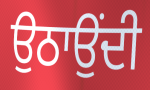
ਉਠਾਉਂਦੀ